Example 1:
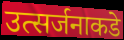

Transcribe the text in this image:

उत्सर्जनाकडे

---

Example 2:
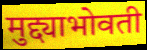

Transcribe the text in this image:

मुद्द्याभोवती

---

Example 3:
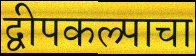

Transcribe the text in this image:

द्वीपकल्पाचा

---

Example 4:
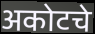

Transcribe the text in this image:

अकोटचे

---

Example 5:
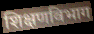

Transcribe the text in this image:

शिक्षणविभाग